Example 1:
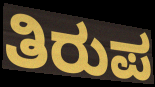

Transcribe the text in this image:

ತಿರುಪ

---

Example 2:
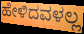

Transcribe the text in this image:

ಹೇಳಿದವಳಲ್ಲ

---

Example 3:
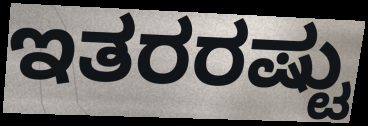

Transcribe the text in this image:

ಇತರರಷ್ಟು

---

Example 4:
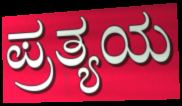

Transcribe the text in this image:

ಪ್ರತ್ಯಯ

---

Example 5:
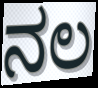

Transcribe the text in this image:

ನಲ